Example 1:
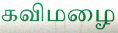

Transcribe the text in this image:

கவிமழை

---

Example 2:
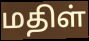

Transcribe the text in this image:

மதிள்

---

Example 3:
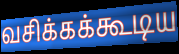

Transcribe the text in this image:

வசிக்கக்கூடிய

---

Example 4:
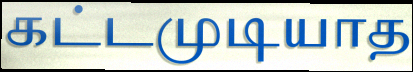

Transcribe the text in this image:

கட்டமுடியாத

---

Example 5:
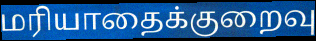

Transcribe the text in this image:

மரியாதைக்குறைவு